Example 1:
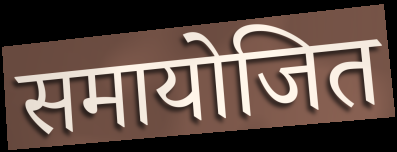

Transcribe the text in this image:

समायोजित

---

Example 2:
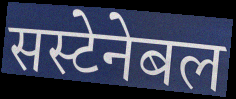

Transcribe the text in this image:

सस्टेनेबल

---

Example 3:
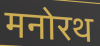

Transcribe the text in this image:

मनोरथ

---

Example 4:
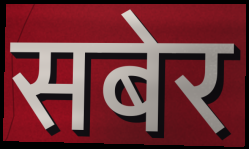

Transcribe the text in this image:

सबेर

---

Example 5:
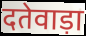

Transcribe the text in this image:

दतेवाड़ा